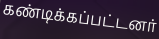
கண்டிக்கப்பட்டனர்